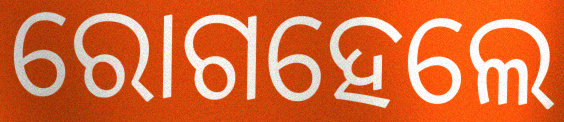
ରୋଗହେଲେ